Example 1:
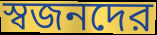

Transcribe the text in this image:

স্বজনদের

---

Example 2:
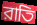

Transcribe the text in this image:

রাতি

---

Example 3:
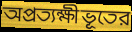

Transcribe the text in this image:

অপ্রত্যক্ষীভূতের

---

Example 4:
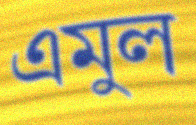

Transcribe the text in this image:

এমুল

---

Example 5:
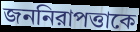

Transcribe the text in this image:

জননিরাপত্তাকে